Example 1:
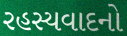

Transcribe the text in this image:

રહસ્યવાદનો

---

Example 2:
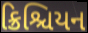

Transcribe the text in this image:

ક્રિશ્ચિયન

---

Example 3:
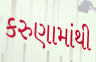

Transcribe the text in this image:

કરુણામાંથી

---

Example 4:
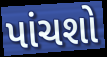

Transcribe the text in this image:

પાંચશો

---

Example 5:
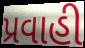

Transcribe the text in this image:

પ્રવાહી